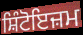
ਸ਼ਿੰਟੋਇਜ਼ਮ